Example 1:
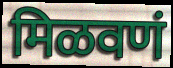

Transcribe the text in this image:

मिळवणं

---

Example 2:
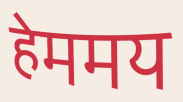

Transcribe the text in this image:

हेममय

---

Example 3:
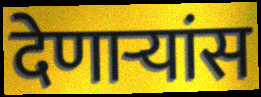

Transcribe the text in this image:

देणाऱ्यांस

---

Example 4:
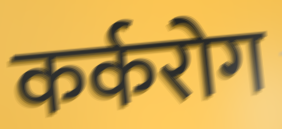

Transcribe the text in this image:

कर्करोग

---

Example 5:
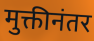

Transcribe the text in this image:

मुक्तीनंतर